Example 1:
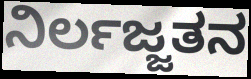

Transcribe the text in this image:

ನಿರ್ಲಜ್ಜತನ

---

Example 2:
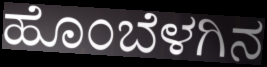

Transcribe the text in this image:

ಹೊಂಬೆಳಗಿನ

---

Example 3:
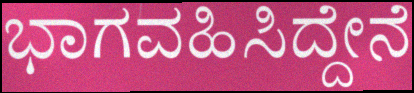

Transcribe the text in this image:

ಭಾಗವಹಿಸಿದ್ದೇನೆ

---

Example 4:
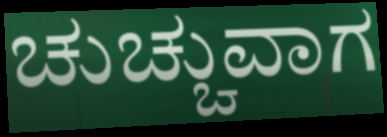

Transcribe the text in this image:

ಚುಚ್ಚುವಾಗ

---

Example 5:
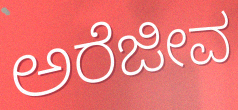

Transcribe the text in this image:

ಅರೆಜೀವ